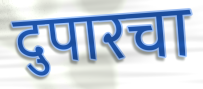
दुपारचा